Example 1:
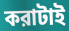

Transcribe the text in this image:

করাটাই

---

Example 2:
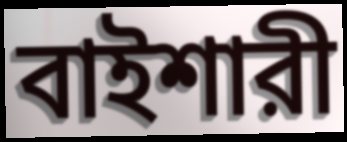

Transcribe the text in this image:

বাইশারী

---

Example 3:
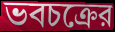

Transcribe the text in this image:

ভবচক্রের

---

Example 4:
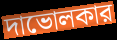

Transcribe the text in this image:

দাভোলকার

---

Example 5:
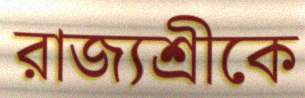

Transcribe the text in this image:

রাজ্যশ্রীকে